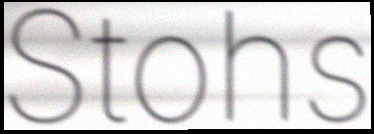
Stohs